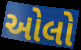
ઓલો